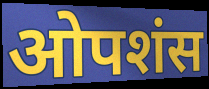
ओपशंस